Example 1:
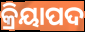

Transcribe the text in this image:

କ୍ରିୟାପଦ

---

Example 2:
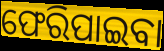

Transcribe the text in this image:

ଫେରିପାଇବା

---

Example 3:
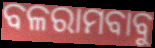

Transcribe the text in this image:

ବଳରାମବାବୁ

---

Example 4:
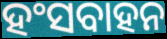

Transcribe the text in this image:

ହଂସବାହନ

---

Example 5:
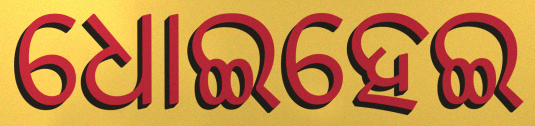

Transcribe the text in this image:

ଧୋଇହେଇ